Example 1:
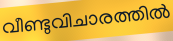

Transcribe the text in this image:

വീണ്ടുവിചാരത്തിൽ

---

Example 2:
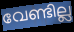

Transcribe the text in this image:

വേണ്ടില്ല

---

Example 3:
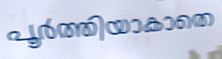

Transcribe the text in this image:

പൂർത്തിയാകാതെ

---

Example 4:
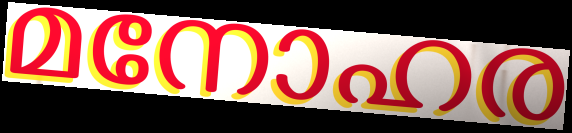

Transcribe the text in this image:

മനോഹര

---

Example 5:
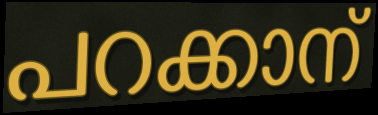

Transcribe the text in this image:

പറക്കാന്